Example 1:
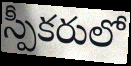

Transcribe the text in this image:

స్పీకరులో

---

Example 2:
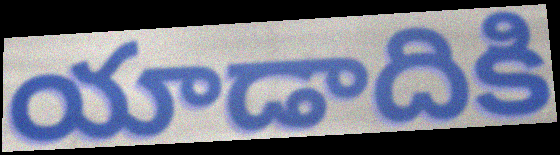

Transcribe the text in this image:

యాడాదికి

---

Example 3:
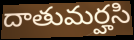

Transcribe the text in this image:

దాతుమర్హసి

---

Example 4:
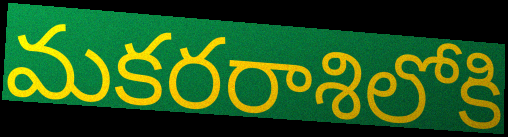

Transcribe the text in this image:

మకరరాశిలోకి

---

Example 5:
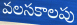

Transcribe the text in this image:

వలసకాలపు